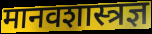
मानवशास्त्रज्ञ